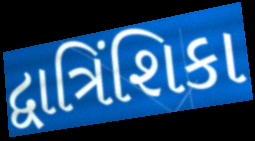
દ્વાત્રિંશિકા